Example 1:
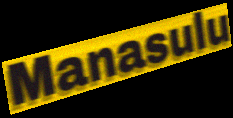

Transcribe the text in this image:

Manasulu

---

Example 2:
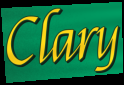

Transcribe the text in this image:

Clary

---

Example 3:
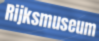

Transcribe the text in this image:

Rijksmuseum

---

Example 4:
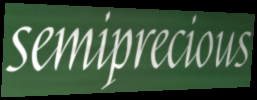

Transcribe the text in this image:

semiprecious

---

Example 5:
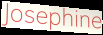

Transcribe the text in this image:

Josephine